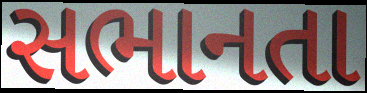
સભાનતા